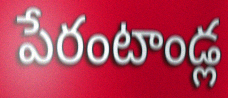
పేరంటాండ్ల